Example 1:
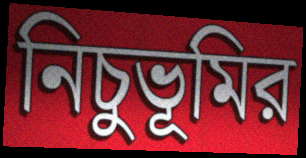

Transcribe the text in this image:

নিচুভূমির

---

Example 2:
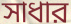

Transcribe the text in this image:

সাধার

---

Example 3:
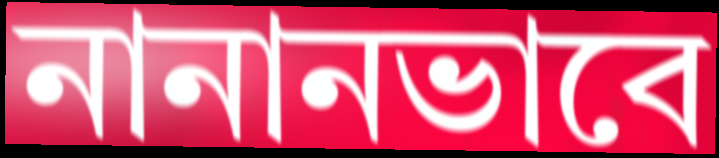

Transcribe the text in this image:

নানানভাবে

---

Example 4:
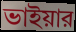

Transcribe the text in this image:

ভাইয়ার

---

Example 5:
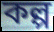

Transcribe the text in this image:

কল্প